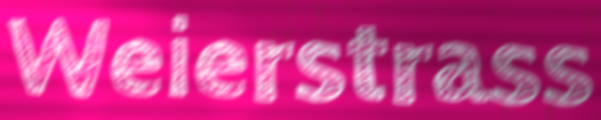
Weierstrass